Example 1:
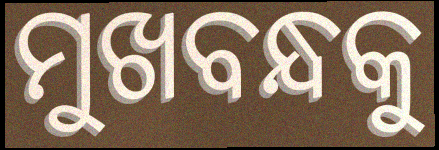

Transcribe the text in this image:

ମୁଖବନ୍ଧକୁ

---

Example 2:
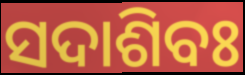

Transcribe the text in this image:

ସଦାଶିବଃ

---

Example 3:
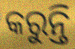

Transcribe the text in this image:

କରୁନ୍ତି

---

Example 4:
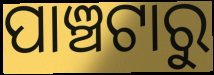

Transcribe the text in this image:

ପାଞ୍ଚଟାରୁ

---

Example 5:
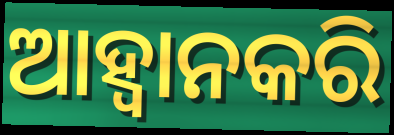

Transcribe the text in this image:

ଆହ୍ୱାନକରି